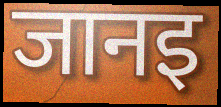
जानइ